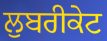
ਲੁਬਰੀਕੇਟ